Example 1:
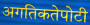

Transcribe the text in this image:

अगतिकतेपोटी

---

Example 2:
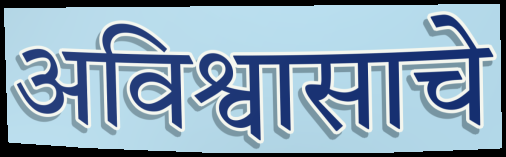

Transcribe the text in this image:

अविश्वासाचे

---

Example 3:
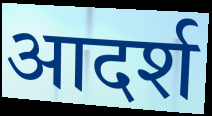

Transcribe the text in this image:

आदर्श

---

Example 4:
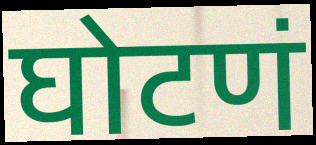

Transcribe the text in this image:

घोटणं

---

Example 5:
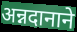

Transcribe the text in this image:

अन्नदानाने